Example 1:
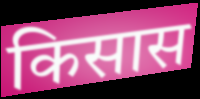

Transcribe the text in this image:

किसास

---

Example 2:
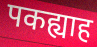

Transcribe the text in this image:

पकह्याह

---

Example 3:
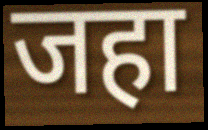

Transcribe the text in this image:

जहा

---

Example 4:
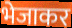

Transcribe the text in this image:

भेजाकर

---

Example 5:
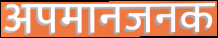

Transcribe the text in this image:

अपमानजनक